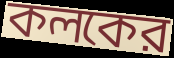
কলকের